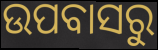
ଉପବାସରୁ